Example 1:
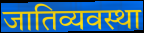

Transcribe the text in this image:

जातिव्यवस्था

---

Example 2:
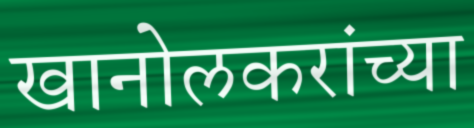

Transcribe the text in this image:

खानोलकरांच्या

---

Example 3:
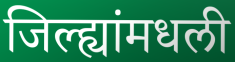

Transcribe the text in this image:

जिल्ह्यांमधली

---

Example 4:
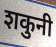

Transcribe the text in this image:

शकुनी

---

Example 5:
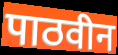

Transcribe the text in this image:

पाठवीन